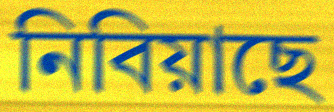
নিবিয়াছে